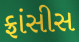
ફ્રાંસીસ